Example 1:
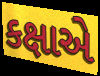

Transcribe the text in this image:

કક્ષાએ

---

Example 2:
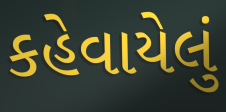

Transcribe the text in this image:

કહેવાયેલું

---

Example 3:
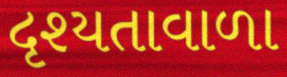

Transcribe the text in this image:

દૃશ્યતાવાળા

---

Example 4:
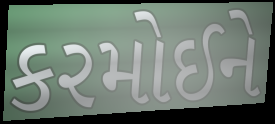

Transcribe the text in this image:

કરમોઈને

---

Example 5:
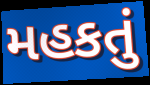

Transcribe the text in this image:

મહકતું